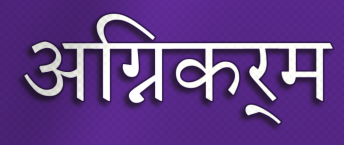
अग्निकर्म